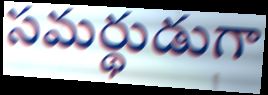
సమర్థుడుగా